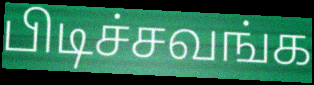
பிடிச்சவங்க